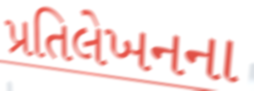
પ્રતિલેખનના